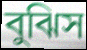
বুঝিস